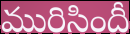
మురిసిందీ